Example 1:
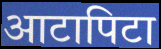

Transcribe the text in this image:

आटापिटा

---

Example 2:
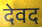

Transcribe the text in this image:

देवद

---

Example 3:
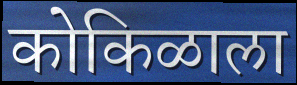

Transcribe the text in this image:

कोकिळाला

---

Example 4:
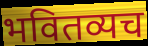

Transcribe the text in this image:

भवितव्यच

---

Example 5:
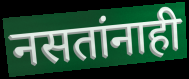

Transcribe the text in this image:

नसतांनाही